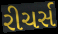
રીચર્સ